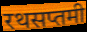
रथसप्तमी